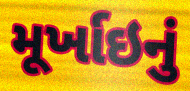
મૂર્ખાઇનું